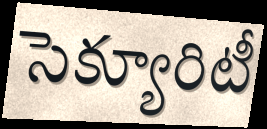
సెక్యూరిటీ